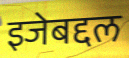
इजेबद्दल